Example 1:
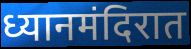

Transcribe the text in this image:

ध्यानमंदिरात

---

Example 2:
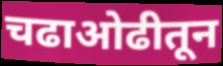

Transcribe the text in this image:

चढाओढीतून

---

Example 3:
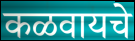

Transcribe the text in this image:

कळवायचे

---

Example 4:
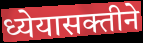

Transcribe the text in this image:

ध्येयासक्तीने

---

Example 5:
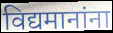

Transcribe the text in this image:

विद्यमानांना